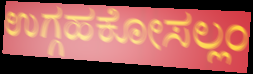
ಉಗ್ಗಹಕೋಸಲ್ಲಂ